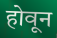
होवून